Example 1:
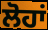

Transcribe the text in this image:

ਲੋਹਾਂ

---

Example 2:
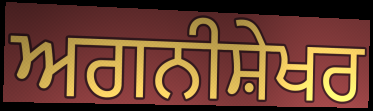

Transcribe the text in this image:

ਅਗਨੀਸ਼ੇਖਰ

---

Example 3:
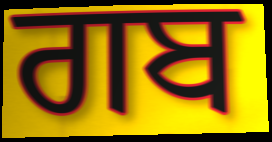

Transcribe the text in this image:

ਗਬ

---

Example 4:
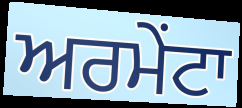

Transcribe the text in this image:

ਅਰਮੇਂਟਾ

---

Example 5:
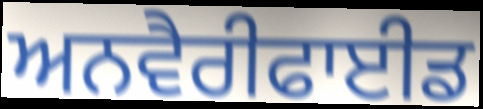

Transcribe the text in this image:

ਅਨਵੈਰੀਫਾਈਡ